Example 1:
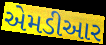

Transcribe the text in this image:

એમડીઆર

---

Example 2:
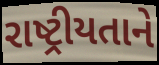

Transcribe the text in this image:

રાષ્ટ્રીયતાને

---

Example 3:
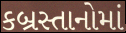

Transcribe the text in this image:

કબ્રસ્તાનોમાં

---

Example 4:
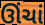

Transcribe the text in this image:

ઊંચાં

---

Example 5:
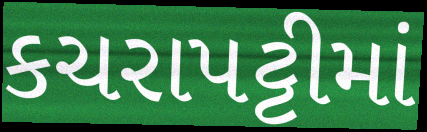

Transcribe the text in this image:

કચરાપટ્ટીમાં